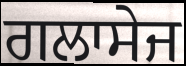
ਗਲਾਸੇਜ